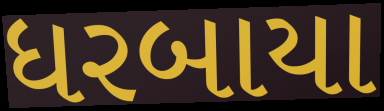
ધરબાયા